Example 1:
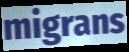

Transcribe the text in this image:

migrans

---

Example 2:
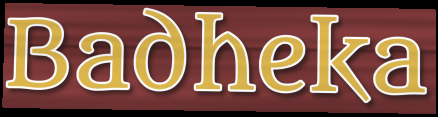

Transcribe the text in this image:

Badheka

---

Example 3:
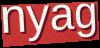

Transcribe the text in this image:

nyag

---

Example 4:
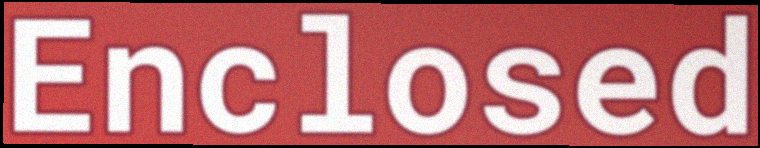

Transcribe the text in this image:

Enclosed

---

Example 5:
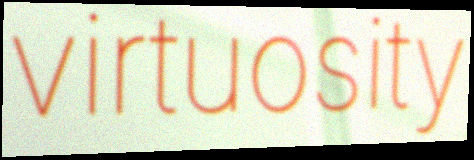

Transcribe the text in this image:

virtuosity